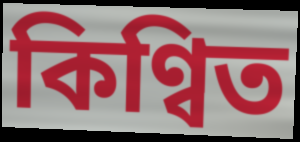
কিণ্বিত